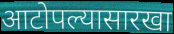
आटोपल्यासारखा